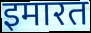
इमारत